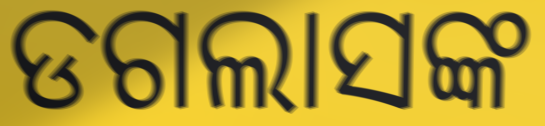
ଡଗଲାସଙ୍କ